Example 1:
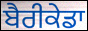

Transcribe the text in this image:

ਬੈਰੀਕੇਡਾ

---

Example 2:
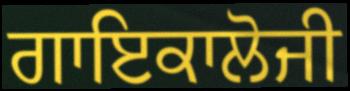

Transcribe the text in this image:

ਗਾਇਕਾਲੋਜੀ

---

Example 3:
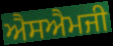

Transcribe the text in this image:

ਐਸਐਮਜੀ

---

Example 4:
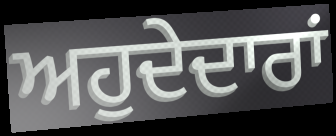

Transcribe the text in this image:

ਅਹੁਦੇਦਾਰਾਂ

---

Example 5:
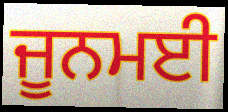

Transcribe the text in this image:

ਜੂਨਮਈ